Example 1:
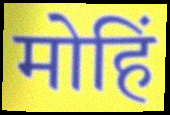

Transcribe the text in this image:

मोहिं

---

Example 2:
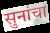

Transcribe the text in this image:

सुनांचा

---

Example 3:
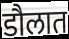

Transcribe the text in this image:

डौलात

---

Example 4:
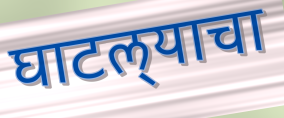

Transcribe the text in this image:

घाटल्याचा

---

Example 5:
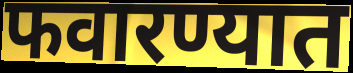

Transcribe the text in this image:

फवारण्यात